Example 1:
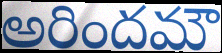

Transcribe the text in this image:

అరిందమౌ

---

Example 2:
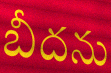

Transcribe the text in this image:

బీదను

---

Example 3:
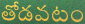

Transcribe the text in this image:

తోడవటం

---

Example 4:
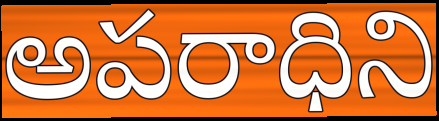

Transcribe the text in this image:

అపరాధిని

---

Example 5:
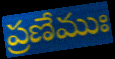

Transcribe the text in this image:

ప్రణేముః